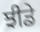
ਝੀਡੇ